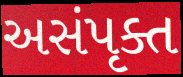
અસંપૃક્ત